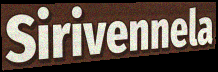
Sirivennela